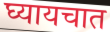
घ्यायचात